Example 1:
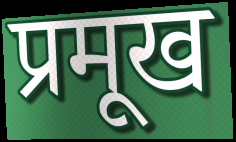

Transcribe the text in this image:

प्रमूख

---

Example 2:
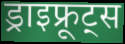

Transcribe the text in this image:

ड्राइफ्रूट्स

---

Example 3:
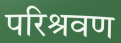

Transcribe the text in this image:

परिश्रवण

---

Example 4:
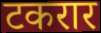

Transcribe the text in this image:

टकरार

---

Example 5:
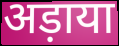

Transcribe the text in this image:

अड़ाया